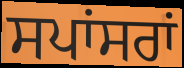
ਸਪਾਂਸਰਾਂ